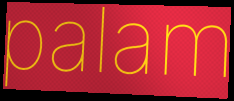
palam